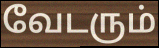
வேடரும்